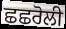
ਛਛਰੋਲੀ